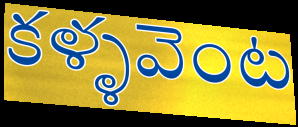
కళ్ళవెంట